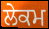
ਲੇਕਮ